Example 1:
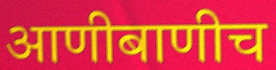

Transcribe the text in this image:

आणीबाणीच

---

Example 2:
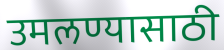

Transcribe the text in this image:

उमलण्यासाठी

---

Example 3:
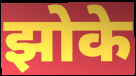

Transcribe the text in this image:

झोके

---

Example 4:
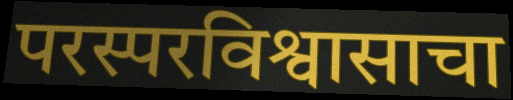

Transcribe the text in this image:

परस्परविश्वासाचा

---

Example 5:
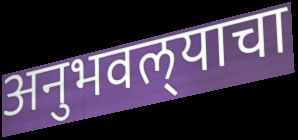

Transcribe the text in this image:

अनुभवल्याचा